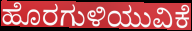
ಹೊರಗುಳಿಯುವಿಕೆ